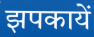
झपकायें